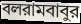
বলরামবাবুর